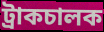
ট্রাকচালক